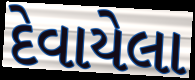
દેવાયેલા